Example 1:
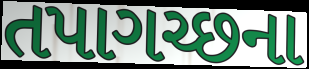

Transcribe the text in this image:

તપાગચ્છના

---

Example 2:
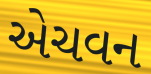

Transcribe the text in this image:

એચવન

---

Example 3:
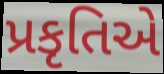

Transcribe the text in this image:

પ્રકૃતિએ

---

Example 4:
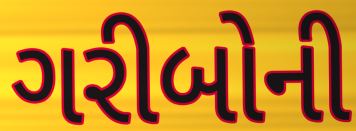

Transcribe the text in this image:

ગરીબોની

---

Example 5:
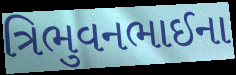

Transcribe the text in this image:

ત્રિભુવનભાઈના